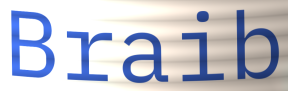
Braib